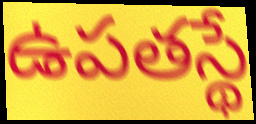
ఉపతస్థే